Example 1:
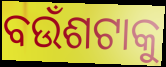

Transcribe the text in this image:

ବଉଁଶଟାକୁ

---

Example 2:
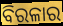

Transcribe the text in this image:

ବିରଳାର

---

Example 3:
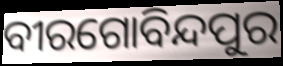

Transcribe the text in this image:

ବୀରଗୋବିନ୍ଦପୁର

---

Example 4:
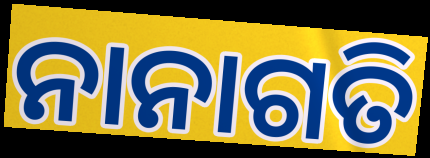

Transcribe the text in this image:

ନାନାଗତି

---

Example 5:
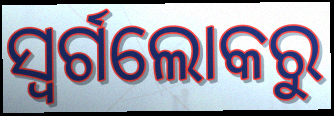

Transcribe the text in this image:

ସ୍ଵର୍ଗଲୋକରୁ